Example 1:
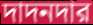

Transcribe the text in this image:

দাদনদার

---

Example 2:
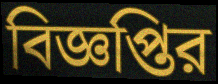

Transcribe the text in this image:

বিজ্ঞপ্তির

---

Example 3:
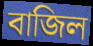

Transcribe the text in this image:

বাজিল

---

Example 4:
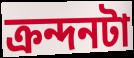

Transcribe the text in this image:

ক্রন্দনটা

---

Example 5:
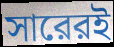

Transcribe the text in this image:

সারেরই